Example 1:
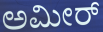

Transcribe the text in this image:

ಅಮೀರ್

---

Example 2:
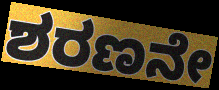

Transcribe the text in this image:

ಶರಣನೇ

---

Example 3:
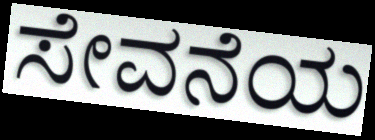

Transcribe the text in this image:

ಸೇವನೆಯ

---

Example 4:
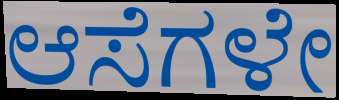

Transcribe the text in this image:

ಆಸೆಗಳೇ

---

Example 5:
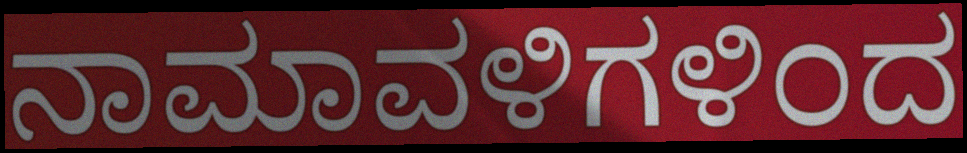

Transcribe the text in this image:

ನಾಮಾವಳಿಗಳಿಂದ